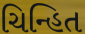
ચિન્હિત